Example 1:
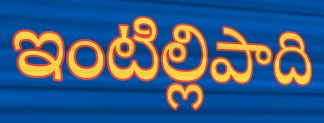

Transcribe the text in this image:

ఇంటిల్లిపాది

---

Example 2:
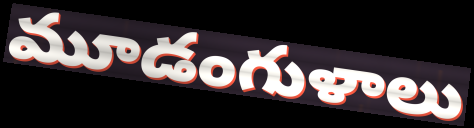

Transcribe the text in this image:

మూడంగుళాలు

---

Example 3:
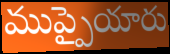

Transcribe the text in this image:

ముప్పైయారు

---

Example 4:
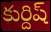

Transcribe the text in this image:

కుర్దిష్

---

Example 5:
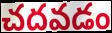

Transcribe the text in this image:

చదవడం